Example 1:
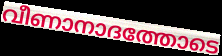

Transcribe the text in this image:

വീണാനാദത്തോടെ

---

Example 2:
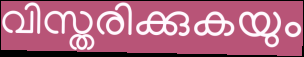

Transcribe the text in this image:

വിസ്തരിക്കുകയും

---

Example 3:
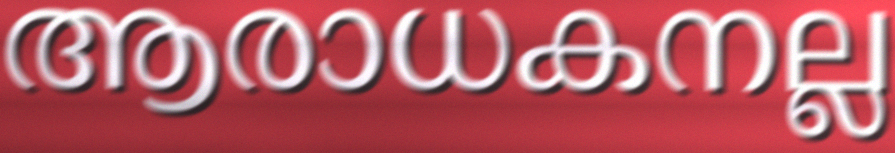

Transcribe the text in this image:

ആരാധകനല്ല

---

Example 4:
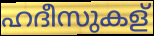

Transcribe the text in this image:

ഹദീസുകള്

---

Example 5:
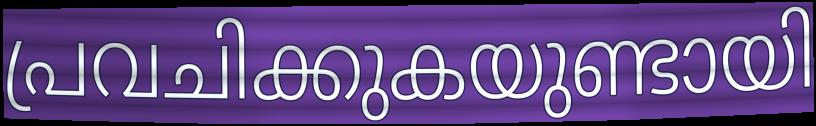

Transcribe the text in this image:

പ്രവചിക്കുകയുണ്ടായി